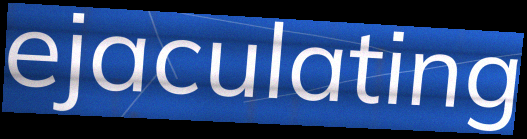
ejaculating